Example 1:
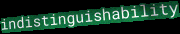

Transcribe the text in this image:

indistinguishability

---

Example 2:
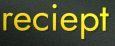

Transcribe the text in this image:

reciept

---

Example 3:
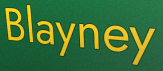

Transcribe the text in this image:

Blayney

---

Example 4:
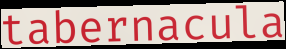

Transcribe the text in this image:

tabernacula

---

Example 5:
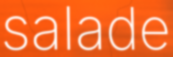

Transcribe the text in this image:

salade